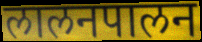
लालनपालन